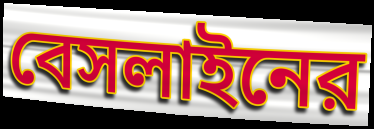
বেসলাইনের